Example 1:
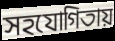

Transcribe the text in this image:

সহযোগিতায়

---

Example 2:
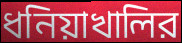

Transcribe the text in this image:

ধনিয়াখালির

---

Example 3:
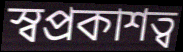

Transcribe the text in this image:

স্বপ্রকাশত্ব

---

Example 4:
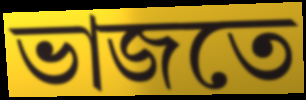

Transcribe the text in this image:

ভাজতে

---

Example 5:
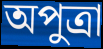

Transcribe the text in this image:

অপুত্রা